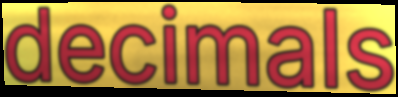
decimals